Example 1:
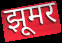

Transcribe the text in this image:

झूमर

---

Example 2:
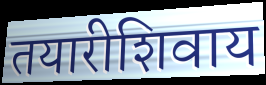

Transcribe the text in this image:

तयारीशिवाय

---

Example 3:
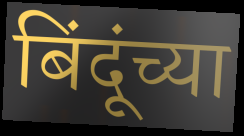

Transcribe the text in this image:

बिंदूंच्या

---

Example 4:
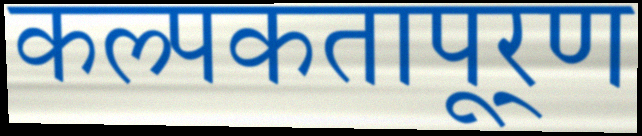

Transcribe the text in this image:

कल्पकतापूर्ण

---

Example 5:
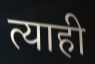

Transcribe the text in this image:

त्याही